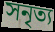
সনৃত্য